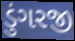
ડુંગરજી